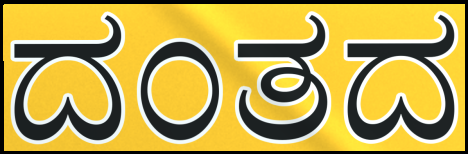
ದಂತದ